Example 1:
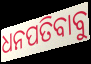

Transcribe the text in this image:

ଧନପତିବାବୁ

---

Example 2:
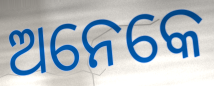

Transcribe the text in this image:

ଅନେକେ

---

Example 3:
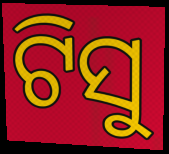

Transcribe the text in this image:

ଟିସୁ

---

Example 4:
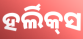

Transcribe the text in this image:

ହର୍ଲିକ୍‌ସ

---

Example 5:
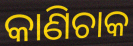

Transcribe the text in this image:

କାଣିଚାକ